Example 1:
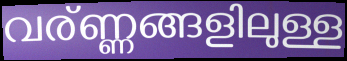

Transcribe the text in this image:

വര്ണ്ണങ്ങളിലുള്ള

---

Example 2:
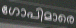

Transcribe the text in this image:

ഗോപിമാരെ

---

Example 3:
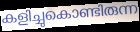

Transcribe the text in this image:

കളിച്ചുകൊണ്ടിരുന്ന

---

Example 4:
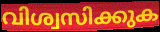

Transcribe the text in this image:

വിശ്വസിക്കുക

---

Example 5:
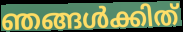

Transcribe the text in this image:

ഞങ്ങൾക്കിത്